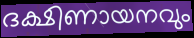
ദക്ഷിണായനവും